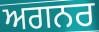
ਅਗਨਰ